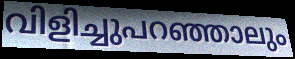
വിളിച്ചുപറഞ്ഞാലും